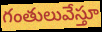
గంతులువేస్తూ